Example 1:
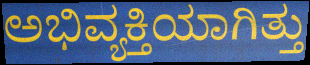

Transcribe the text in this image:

ಅಭಿವ್ಯಕ್ತಿಯಾಗಿತ್ತು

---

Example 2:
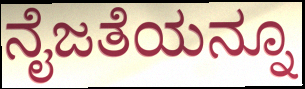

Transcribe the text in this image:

ನೈಜತೆಯನ್ನೂ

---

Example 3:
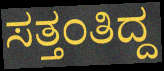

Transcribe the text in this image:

ಸತ್ತಂತಿದ್ದ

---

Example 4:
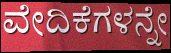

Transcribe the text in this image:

ವೇದಿಕೆಗಳನ್ನೇ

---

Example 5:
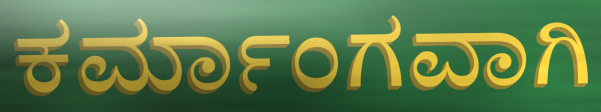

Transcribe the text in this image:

ಕರ್ಮಾಂಗವಾಗಿ